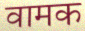
वामक